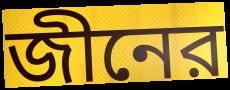
জীনের